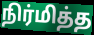
நிர்மித்த